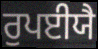
ਰੁਪਈਯੈ